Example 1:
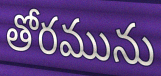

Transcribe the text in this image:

తోరమును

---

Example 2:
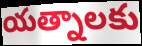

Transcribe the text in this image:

యత్నాలకు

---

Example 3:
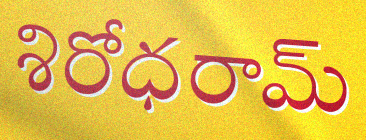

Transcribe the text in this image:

శిరోధరామ్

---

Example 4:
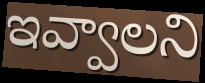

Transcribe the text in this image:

ఇవ్వాలని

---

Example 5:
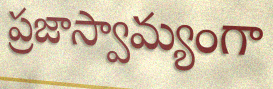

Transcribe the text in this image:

ప్రజాస్వామ్యంగా